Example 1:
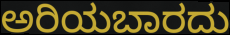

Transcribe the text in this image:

ಅರಿಯಬಾರದು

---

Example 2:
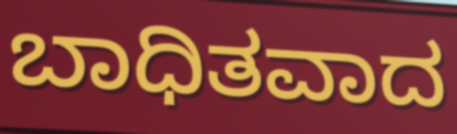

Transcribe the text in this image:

ಬಾಧಿತವಾದ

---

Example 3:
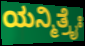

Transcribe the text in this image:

ಯನ್ಮಿತ್ರೈಃ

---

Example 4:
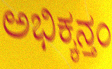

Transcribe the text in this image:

ಅಭಿಕ್ಕನ್ತಂ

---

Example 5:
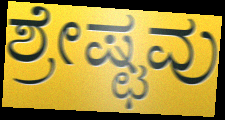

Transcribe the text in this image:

ಶ್ರೇಷ್ಟವು